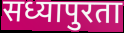
सध्यापुरता